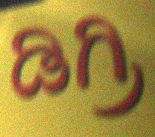
ಡಿಗ್ರಿ